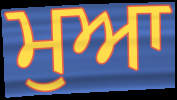
ਮੁਆ